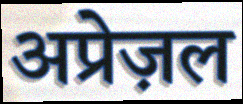
अप्रेज़ल